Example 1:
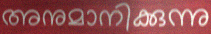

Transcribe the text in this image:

അനുമാനിക്കുന്നു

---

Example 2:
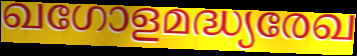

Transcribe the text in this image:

ഖഗോളമദ്ധ്യരേഖ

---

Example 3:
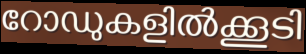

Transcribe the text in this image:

റോഡുകളിൽക്കൂടി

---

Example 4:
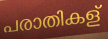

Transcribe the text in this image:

പരാതികള്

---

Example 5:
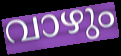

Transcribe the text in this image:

വാഴും